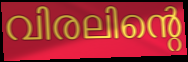
വിരലിന്റെ